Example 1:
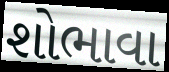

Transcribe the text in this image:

શોભાવા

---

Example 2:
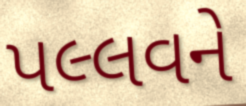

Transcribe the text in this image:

પલ્લવને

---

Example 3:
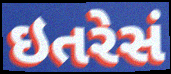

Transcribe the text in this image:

ઇતરેસં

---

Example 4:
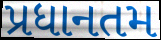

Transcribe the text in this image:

પ્રધાનતમ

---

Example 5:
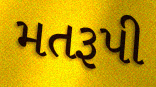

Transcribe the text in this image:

મતરૂપી